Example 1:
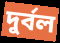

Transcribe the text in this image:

দুর্বল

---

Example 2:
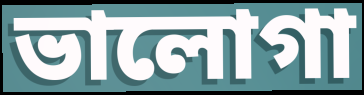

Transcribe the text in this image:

ভালোগা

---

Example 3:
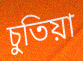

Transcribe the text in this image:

চুতিয়া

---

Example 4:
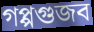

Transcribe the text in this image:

গপ্পগুজব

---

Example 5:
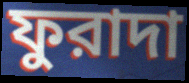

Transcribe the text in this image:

ফুরাদা